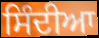
ਸਿੰਦੀਆ